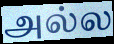
அல்ல